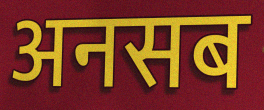
अनसब